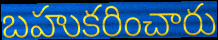
బహుకరించారు